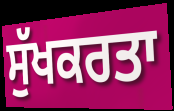
ਸੁੱਖਕਰਤਾ